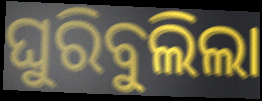
ଘୁରିବୁଲିଲା